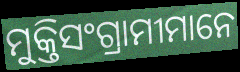
ମୁକ୍ତିସଂଗ୍ରାମୀମାନେ